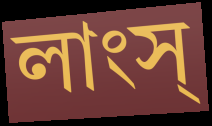
লাংস্